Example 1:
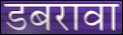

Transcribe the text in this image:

डबरावा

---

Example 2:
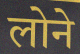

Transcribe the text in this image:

लोने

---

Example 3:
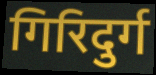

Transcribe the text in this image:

गिरिदुर्ग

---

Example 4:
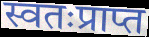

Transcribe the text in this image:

स्वतःप्राप्त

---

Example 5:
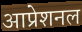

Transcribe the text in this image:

आप्रेशनल